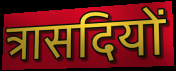
त्रासदियों